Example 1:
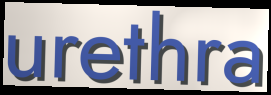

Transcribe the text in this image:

urethra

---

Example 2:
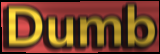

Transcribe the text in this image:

Dumb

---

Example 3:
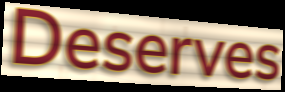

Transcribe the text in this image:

Deserves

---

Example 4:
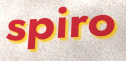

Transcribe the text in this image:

spiro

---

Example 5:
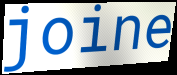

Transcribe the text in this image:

joine